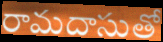
రామదాసుతో